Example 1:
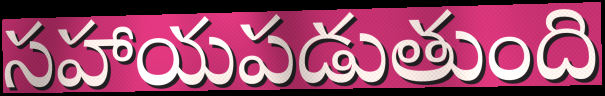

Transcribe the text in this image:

సహాయపడుతుంది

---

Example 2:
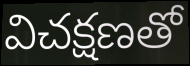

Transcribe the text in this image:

విచక్షణతో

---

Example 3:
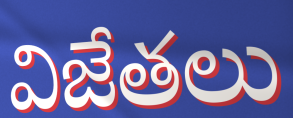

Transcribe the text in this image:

విజేతలు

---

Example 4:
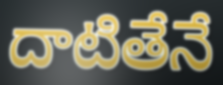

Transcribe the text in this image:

దాటితేనే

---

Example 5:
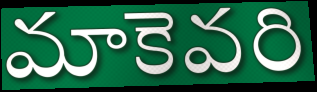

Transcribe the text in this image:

మాకెవరి